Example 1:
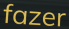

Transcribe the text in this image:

fazer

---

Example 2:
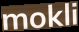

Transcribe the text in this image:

mokli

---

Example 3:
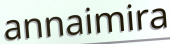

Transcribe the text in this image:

annaimira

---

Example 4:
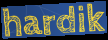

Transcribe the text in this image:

hardik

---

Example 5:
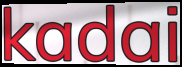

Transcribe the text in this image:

kadai